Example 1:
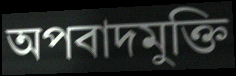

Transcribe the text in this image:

অপবাদমুক্তি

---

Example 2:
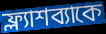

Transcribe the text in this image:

ফ্ল্যাশব্যাকে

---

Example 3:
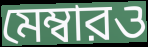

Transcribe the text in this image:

মেম্বারও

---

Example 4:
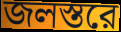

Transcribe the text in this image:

জলস্তরে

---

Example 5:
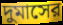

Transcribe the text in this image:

দুমাসের